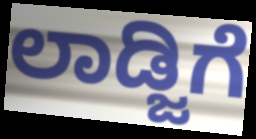
ಲಾಡ್ಜಿಗೆ